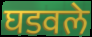
घडवले